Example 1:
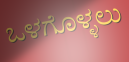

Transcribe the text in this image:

ಒಳಗೊಳ್ಳಲು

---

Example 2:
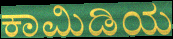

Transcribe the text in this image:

ಕಾಮಿಡಿಯ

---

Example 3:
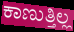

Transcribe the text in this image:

ಕಾಣುತ್ತಿಲ್ಲ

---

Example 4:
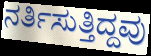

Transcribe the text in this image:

ನರ್ತಿಸುತ್ತಿದ್ದವು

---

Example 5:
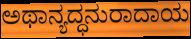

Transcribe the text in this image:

ಅಥಾನ್ಯದ್ಧನುರಾದಾಯ